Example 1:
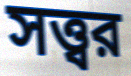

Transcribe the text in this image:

সত্ত্বর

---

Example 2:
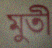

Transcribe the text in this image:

মুতী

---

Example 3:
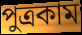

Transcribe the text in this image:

পুত্রকাম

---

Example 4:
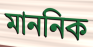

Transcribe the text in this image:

মাননিক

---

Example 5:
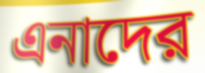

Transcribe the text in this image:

এনাদের